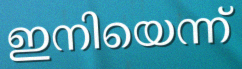
ഇനിയെന്ന്